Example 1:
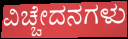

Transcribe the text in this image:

ವಿಚ್ಚೇದನಗಳು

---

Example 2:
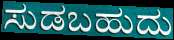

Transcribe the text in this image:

ಸುಡಬಹುದು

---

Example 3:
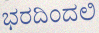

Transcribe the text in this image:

ಭರದಿಂದಲಿ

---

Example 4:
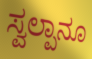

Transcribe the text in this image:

ಸ್ವಲ್ಪಾನೂ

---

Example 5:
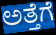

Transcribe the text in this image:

ಅತ್ತೆಗೆ